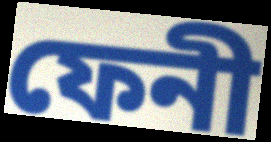
ফেনী